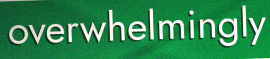
overwhelmingly